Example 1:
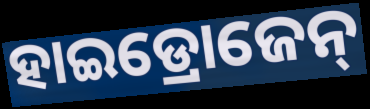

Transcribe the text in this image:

ହାଇଡ୍ରୋଜେନ୍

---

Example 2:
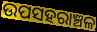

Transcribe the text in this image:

ଉପସହରାଞ୍ଚଳ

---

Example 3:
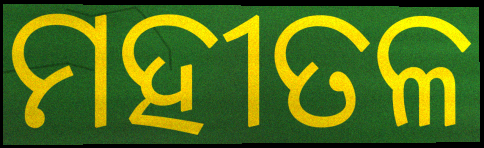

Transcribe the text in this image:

ମହୀତଳ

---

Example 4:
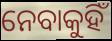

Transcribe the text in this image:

ନେବାକୁହିଁ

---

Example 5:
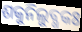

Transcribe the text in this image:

ଶକୁନିଲୁବ୍ଧକଃ